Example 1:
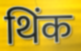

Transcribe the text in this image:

थिंक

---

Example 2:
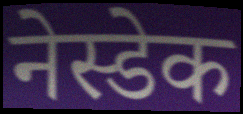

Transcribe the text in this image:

नेस्डेक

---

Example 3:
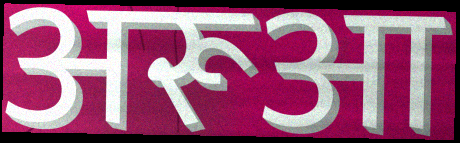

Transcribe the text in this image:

अरूआ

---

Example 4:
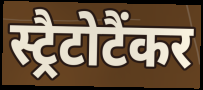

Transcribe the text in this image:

स्ट्रैटोटैंकर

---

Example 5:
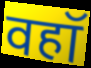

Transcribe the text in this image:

वहॉ